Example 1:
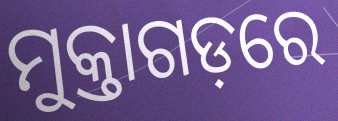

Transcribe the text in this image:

ମୁକ୍ତାଗଡ଼ରେ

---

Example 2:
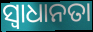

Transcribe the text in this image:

ସ୍ୱାଧାନତା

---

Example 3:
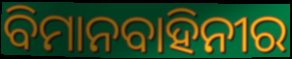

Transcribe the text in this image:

ବିମାନବାହିନୀର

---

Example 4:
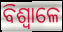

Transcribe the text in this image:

ବିଶ୍ଵାଳେ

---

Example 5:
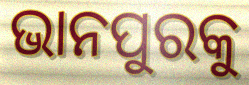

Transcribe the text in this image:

ଭାନପୁରକୁ